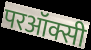
परऑक्सी